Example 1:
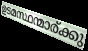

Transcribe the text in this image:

ഉടമസ്ഥന്മാര്ക്കു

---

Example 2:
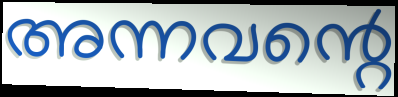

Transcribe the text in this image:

അന്നവന്റെ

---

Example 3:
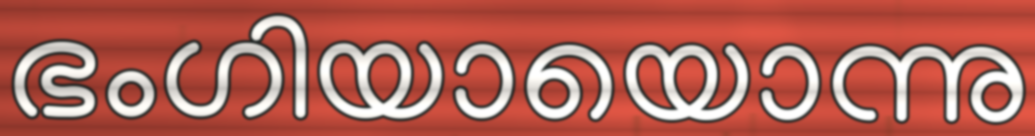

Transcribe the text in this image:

ഭംഗിയായൊന്നു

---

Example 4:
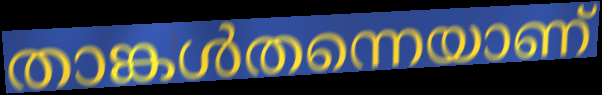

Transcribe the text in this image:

താങ്കൾതന്നെയാണ്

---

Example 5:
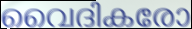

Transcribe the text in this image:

വൈദികരോ